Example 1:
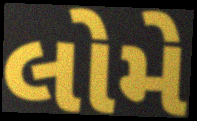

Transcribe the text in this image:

લોમે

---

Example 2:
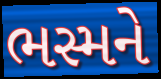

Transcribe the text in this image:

ભસ્મને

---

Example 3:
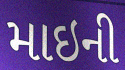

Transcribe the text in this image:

માઇની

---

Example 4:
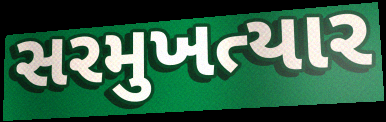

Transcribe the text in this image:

સરમુખત્યાર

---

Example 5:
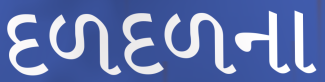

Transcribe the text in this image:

દળદળના